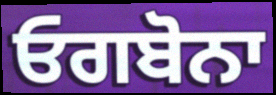
ਓਗਬੋਨਾ